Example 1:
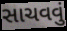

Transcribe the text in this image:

સાચવવું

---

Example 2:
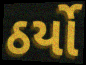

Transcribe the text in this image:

ઠર્યો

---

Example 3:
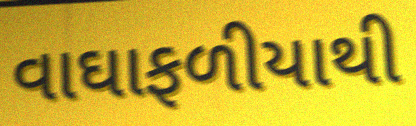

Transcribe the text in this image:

વાઘાફળીયાથી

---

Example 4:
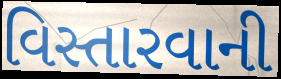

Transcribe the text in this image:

વિસ્તારવાની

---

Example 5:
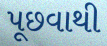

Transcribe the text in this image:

પૂછવાથી